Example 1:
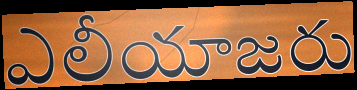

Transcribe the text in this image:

ఎలీయాజరు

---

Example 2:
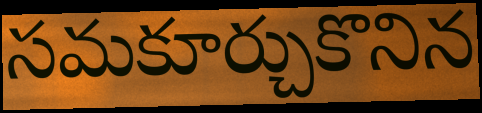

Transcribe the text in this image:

సమకూర్చుకొనిన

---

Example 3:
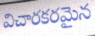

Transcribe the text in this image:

విచారకరమైన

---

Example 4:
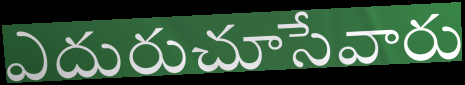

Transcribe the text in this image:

ఎదురుచూసేవారు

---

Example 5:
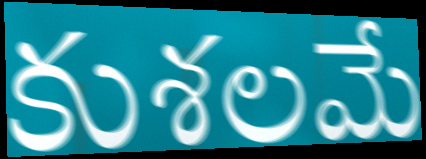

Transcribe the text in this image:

కుశలమే